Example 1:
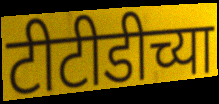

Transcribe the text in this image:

टीटीडीच्या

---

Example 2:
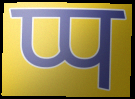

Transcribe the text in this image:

प्प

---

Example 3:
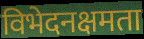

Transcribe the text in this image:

विभेदनक्षमता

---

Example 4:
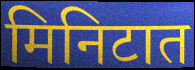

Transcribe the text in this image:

मिनिटात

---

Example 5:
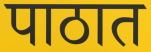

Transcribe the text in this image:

पाठात